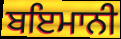
ਬਇਮਾਨੀ